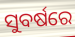
ସୁବର୍ଷରେ